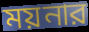
ময়নার